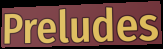
Preludes